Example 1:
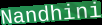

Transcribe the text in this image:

Nandhini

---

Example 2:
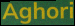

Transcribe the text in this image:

Aghori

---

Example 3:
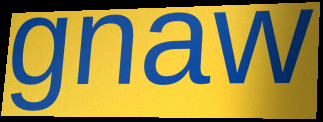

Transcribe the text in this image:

gnaw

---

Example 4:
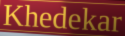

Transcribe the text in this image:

Khedekar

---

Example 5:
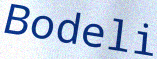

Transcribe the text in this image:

Bodeli